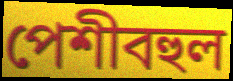
পেশীবহুল